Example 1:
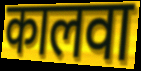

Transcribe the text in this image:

कालवा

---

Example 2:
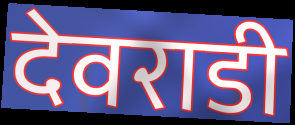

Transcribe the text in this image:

देवराडी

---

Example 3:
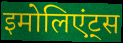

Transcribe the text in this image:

इमोलिएंट्स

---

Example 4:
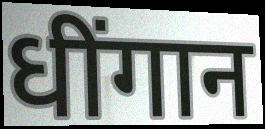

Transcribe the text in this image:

धींगान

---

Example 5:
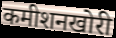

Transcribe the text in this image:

कमीशनखोरी